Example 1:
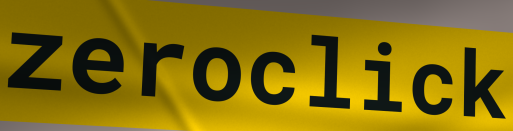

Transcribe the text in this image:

zeroclick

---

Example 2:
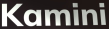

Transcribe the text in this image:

Kamini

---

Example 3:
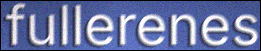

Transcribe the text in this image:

fullerenes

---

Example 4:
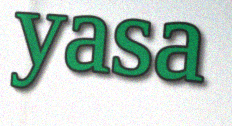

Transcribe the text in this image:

yasa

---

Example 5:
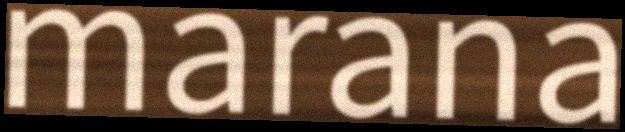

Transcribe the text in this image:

marana